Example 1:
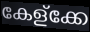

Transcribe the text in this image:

കേള്ക്കേ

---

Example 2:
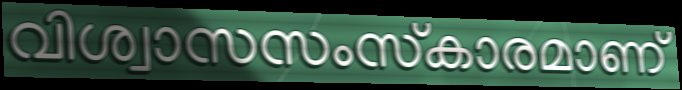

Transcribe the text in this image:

വിശ്വാസസംസ്‌കാരമാണ്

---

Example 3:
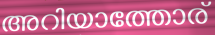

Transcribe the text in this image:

അറിയാത്തോര്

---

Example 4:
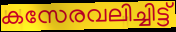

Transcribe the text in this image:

കസേരവലിച്ചിട്ട്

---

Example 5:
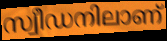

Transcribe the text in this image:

സ്വീഡനിലാണ്